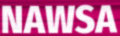
NAWSA